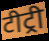
टीट्री